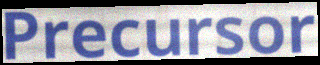
Precursor